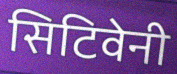
सिटिवेनी